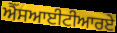
ਐੱਸਆਈਟੀਆਰਏ